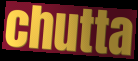
chutta